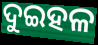
ଦୁଇହଳ